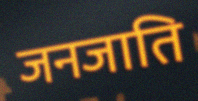
जनजाति